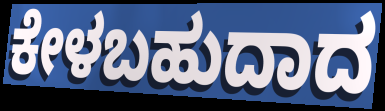
ಕೇಳಬಹುದಾದ